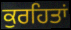
ਕੁਰਹਿਤਾਂ